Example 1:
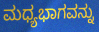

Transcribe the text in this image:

ಮಧ್ಯಭಾಗವನ್ನು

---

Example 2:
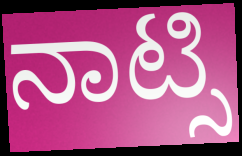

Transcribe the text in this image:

ನಾಟ್ಸಿ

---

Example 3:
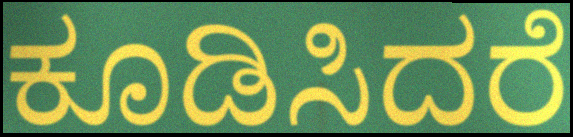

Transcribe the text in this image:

ಕೂಡಿಸಿದರೆ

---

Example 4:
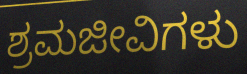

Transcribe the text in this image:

ಶ್ರಮಜೀವಿಗಳು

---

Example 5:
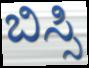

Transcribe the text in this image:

ಬಿಸ್ಸಿ